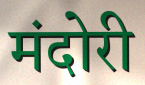
मंदोरी